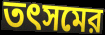
তৎসমের